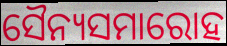
ସୈନ୍ୟସମାରୋହ